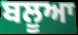
ਬਲੂਆ